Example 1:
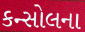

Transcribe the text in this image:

કન્સોલના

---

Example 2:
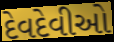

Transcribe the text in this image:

દેવદેવીઓ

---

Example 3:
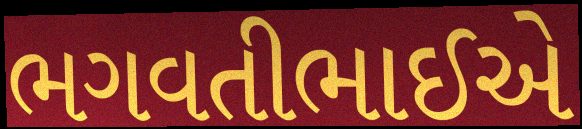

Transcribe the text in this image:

ભગવતીભાઈએ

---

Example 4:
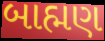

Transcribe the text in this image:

બાહ્મણ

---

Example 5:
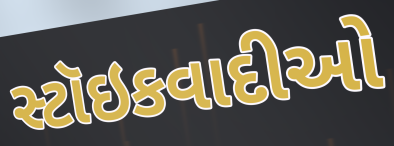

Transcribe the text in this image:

સ્ટૉઇકવાદીઓ